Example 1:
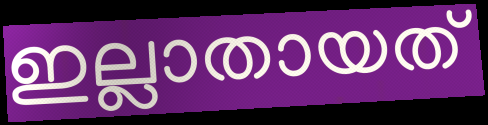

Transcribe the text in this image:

ഇല്ലാതായത്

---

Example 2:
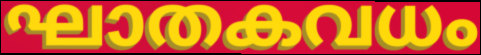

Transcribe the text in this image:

ഘാതകവധം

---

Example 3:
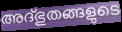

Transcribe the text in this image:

അദ്ഭുതങ്ങളുടെ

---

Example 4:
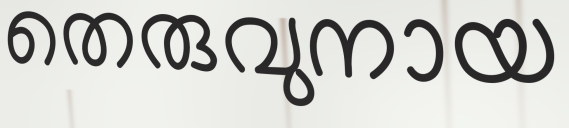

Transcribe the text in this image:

തെരുവുനായ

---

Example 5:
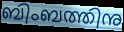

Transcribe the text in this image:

ബിംബത്തിനു